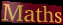
Maths